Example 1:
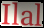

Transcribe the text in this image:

Ilal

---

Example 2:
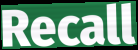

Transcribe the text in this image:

Recall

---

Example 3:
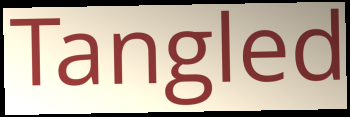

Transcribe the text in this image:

Tangled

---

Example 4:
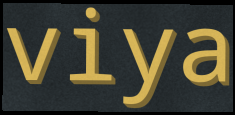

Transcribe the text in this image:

viya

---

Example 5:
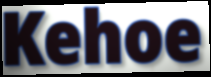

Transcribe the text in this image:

Kehoe